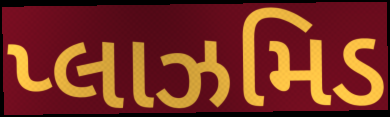
પ્લાઝમિડ